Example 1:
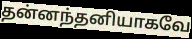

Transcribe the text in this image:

தன்னந்தனியாகவே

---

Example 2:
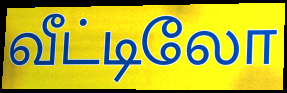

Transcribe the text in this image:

வீட்டிலோ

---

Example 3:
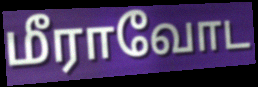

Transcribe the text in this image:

மீராவோட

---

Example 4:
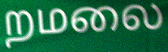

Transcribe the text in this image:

றமலை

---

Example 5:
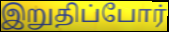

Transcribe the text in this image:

இறுதிப்போர்